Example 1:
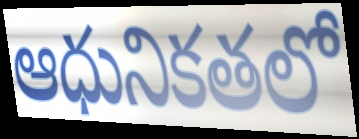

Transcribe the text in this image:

ఆధునికతలో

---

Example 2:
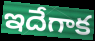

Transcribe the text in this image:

ఇదేగాక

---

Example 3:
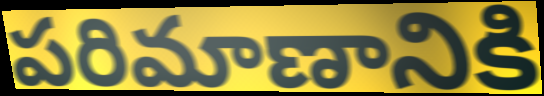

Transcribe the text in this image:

పరిమాణానికి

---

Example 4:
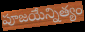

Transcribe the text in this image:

పూజయేన్నిత్యం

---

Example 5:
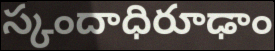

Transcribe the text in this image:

స్కందాధిరూఢాం